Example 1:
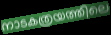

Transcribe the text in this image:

നാടകത്രയത്തിലെ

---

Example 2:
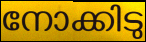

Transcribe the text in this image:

നോക്കിടു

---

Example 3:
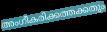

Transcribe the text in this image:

അംഗീകരിക്കത്തക്കതും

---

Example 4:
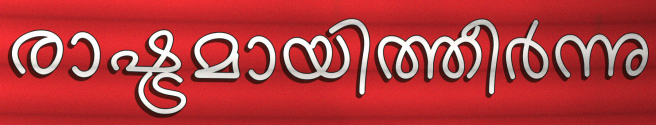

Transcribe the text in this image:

രാഷ്ട്രമായിത്തീർന്നു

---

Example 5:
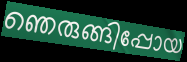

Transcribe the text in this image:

ഞെരുങ്ങിപ്പോയ